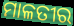
ମାଳତୀର